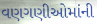
વણગણીઓમાંની